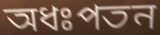
অধঃপতন